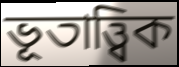
ভূতাত্ত্বিক